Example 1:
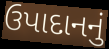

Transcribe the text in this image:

ઉપાદાનનું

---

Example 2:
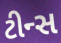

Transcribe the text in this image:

ટીન્સ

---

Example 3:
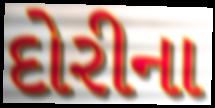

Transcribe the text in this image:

દોરીના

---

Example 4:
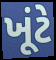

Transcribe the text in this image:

ખૂંટે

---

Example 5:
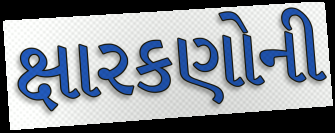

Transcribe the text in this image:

ક્ષારકણોની